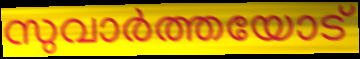
സുവാർത്തയോട്